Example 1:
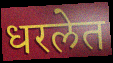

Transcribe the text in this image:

धरलेत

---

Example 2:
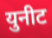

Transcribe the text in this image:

युनीट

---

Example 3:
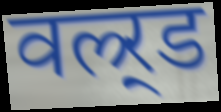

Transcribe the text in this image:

वल्र्ड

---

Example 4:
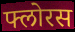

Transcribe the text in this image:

फ्लोरस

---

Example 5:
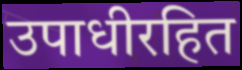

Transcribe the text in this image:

उपाधीरहित